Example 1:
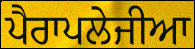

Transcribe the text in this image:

ਪੈਰਾਪਲੇਜੀਆ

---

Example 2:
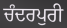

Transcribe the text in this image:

ਚੰਦਰਪੁਰੀ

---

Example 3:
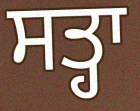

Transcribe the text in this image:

ਸਤ੍ਹਾ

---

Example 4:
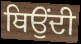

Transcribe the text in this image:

ਥਿਉਂਦੀ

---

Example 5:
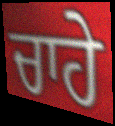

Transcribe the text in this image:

ਚਾਹੇ